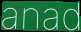
anad